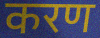
करण